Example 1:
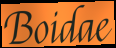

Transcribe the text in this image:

Boidae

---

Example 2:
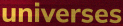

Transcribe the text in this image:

universes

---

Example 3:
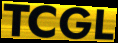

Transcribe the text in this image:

TCGL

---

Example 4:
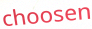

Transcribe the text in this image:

choosen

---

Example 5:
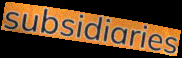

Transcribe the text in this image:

subsidiaries